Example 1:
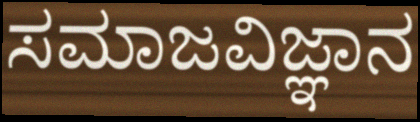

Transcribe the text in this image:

ಸಮಾಜವಿಜ್ಞಾನ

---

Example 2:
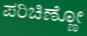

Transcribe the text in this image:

ಪರಿಚಿಣ್ಣೋ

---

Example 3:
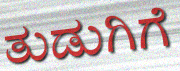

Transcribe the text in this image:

ತುಡುಗಿಗೆ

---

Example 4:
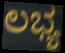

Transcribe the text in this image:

ಲಭ್ಯ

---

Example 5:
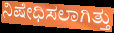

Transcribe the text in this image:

ನಿಷೇಧಿಸಲಾಗಿತ್ತು